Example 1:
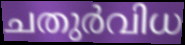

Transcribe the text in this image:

ചതുർവിധ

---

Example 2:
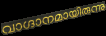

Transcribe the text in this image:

വാഗ്ദാനമായിരുന്നു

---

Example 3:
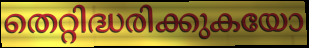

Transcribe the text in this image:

തെറ്റിദ്ധരിക്കുകയോ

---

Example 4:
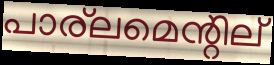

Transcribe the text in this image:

പാര്ലമെന്റില്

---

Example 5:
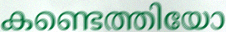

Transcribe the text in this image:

കണ്ടെത്തിയോ